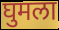
घुमला